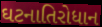
ઘટનાતિરોધાન